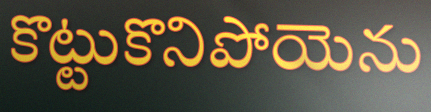
కొట్టుకొనిపోయెను